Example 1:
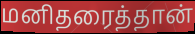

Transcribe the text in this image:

மனிதரைத்தான்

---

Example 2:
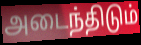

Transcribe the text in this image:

அடைந்திடும்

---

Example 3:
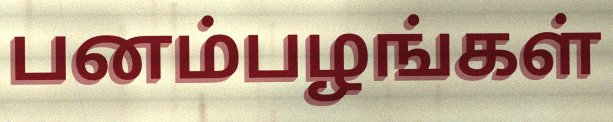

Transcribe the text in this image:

பனம்பழங்கள்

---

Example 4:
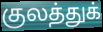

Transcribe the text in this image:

குலத்துக்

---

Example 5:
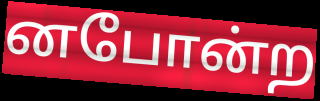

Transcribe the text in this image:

னபோன்ற